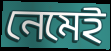
নেমেই